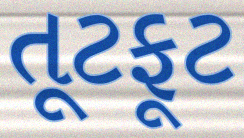
તૂટફૂટ